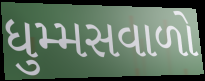
ધુમ્મસવાળો